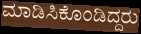
ಮಾಡಿಸಿಕೊಂಡಿದ್ದರು